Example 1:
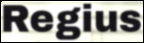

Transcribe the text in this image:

Regius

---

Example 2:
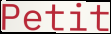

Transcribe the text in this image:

Petit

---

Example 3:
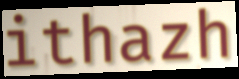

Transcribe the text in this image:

ithazh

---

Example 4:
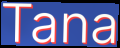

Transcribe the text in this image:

Tana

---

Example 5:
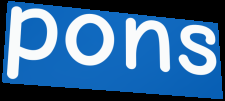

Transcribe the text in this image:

pons